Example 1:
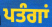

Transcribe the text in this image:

ਪਤੰਗਾਂ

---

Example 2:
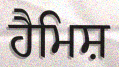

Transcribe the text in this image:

ਹੈਮਿਸ਼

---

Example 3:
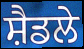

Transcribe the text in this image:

ਸ਼ੈਡਲੇ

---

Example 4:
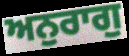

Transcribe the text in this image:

ਅਨੁਰਾਗੁ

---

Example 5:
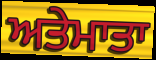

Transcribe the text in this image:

ਅਤੇਮਾਤਾ